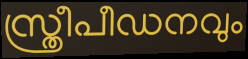
സ്ത്രീപീഡനവും